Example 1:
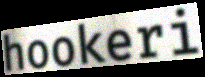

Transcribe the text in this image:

hookeri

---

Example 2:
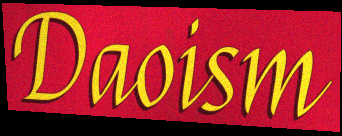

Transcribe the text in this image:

Daoism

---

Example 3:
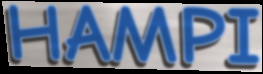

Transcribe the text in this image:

HAMPI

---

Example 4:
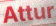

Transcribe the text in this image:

Attur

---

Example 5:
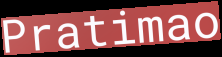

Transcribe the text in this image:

Pratimao